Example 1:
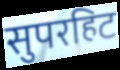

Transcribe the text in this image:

सुपरहिट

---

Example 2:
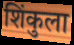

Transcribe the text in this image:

शिंकुला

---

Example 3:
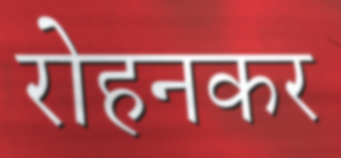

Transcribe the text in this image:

रोहनकर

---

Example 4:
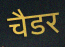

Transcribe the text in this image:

चैडर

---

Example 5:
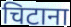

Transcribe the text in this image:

चिटाना